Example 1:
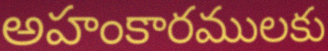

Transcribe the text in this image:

అహంకారములకు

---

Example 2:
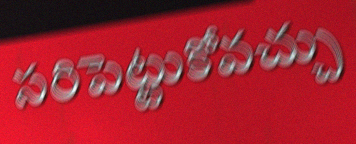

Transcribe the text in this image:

సరిపెట్టుకోవచ్చు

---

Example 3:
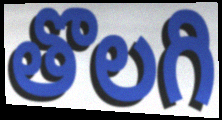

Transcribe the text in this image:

తొలగి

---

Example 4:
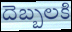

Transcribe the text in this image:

దెబ్బలకి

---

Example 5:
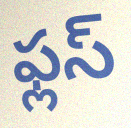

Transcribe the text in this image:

ఫ్లస్